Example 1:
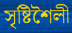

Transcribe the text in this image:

সৃষ্টিশৈলী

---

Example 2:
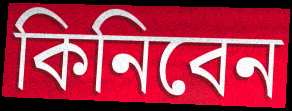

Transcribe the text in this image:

কিনিবেন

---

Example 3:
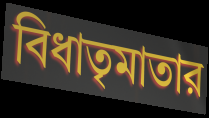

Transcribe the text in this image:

বিধাতৃমাতার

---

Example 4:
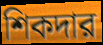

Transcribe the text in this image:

শিকদার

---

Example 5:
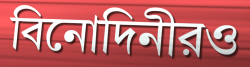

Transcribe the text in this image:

বিনোদিনীরও